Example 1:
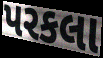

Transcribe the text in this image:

પરકલા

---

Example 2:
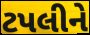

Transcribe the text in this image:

ટપલીને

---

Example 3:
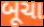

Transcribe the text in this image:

બૂચા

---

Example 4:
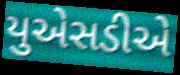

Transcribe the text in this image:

યુએસડીએ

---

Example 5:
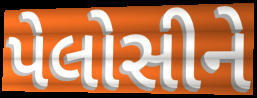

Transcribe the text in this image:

પેલોસીને